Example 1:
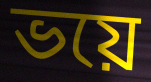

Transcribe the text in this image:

ভয়ে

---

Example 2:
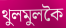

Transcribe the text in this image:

থুলমুলকৈ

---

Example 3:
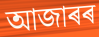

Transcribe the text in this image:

আজাৰৰ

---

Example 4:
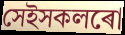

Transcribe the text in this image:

সেইসকলৰো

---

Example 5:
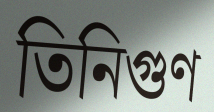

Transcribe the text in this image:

তিনিগুণ